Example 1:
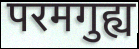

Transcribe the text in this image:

परमगुह्य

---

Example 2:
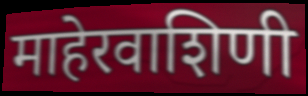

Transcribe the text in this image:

माहेरवाशिणी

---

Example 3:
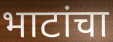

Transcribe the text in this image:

भाटांचा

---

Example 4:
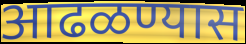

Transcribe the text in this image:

आढळण्यास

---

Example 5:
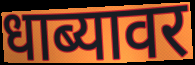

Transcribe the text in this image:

धाब्यावर